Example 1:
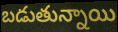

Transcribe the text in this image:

బడుతున్నాయి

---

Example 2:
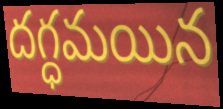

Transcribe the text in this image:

దగ్ధమయిన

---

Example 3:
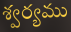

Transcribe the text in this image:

శ్వర్యము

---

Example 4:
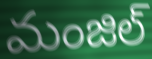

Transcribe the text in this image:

మంజిల్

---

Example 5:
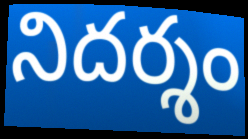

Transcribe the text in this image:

నిదర్శం